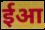
ईआ